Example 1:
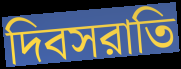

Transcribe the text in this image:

দিবসরাতি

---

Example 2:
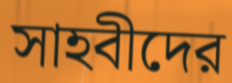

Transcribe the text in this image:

সাহবীদের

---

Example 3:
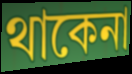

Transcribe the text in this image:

থাকেনা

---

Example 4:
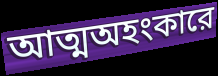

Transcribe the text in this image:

আত্মঅহংকারে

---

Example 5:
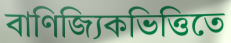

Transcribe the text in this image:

বাণিজ্যিকভিত্তিতে